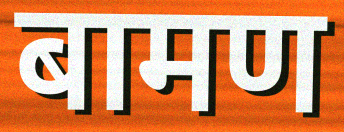
बामण